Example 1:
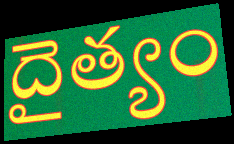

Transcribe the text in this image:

దైత్యం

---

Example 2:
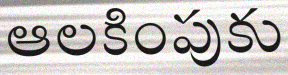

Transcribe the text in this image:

ఆలకింపుకు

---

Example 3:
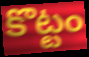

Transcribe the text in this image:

కొట్టం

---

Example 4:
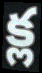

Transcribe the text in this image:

క్ల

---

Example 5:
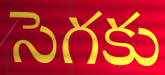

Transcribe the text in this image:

సెగకు